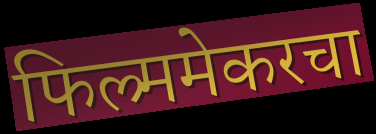
फिल्ममेकरचा